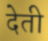
देती